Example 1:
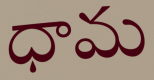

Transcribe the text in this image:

ధామ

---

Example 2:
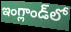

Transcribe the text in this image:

ఇంగ్లాండ్‌లో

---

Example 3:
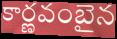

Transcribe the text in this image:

కార్ణవంబైన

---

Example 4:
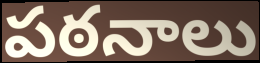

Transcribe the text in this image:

పఠనాలు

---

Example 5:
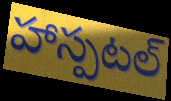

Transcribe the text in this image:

హాస్పటల్